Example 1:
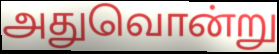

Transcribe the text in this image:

அதுவொன்று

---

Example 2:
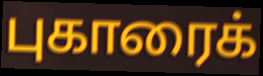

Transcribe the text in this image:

புகாரைக்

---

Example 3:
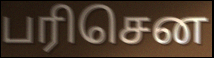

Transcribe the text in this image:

பரிசென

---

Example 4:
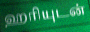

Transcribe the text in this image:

ஹரியுடன்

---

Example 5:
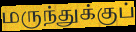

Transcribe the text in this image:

மருந்துக்குப்